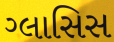
ગ્લાસિસ